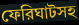
ফেরিঘাটসহ